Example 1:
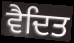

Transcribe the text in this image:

ਵੈਦਿਤ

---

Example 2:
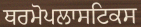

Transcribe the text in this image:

ਥਰਮੋਪਲਾਸਟਿਕਸ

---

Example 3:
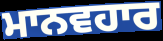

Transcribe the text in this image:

ਮਾਨਵਹਾਰ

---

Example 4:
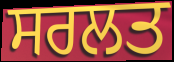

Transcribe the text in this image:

ਸਰਲਤ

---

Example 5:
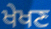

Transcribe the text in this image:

ਖੇਖਣ